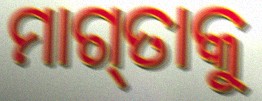
ମାଗ୍‌ତାକୁ